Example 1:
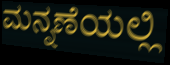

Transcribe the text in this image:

ಮನ್ನಣೆಯಲ್ಲಿ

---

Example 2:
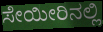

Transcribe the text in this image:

ಸೇಯೀರಿನಲ್ಲಿ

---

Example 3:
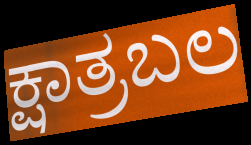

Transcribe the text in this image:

ಕ್ಷಾತ್ರಬಲ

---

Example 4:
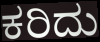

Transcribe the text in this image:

ಕರಿದು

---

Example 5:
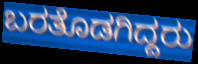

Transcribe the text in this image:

ಬರತೊಡಗಿದ್ದರು